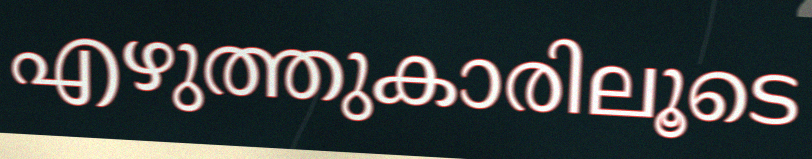
എഴുത്തുകാരിലൂടെ